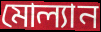
মোল্যান